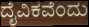
ದೈವಿಕವೆಂದು